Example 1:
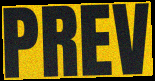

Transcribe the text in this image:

PREV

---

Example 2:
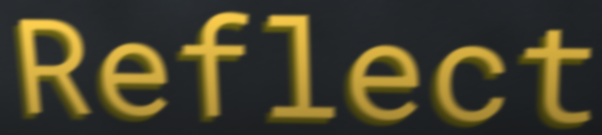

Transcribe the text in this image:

Reflect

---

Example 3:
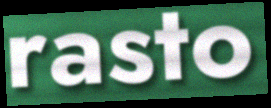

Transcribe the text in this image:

rasto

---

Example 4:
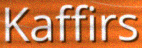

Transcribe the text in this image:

Kaffirs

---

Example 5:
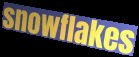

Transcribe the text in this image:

snowflakes